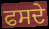
ਫਸਦੇ